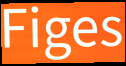
Figes